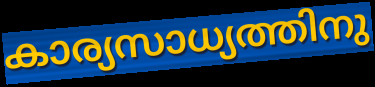
കാര്യസാധ്യത്തിനു